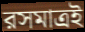
রসমাত্রই